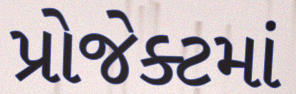
પ્રોજેક્ટમાં